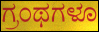
ಗ್ರಂಥಗಳೂ